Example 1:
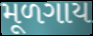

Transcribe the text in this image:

મૂળગાય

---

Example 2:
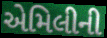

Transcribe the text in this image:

એમિલીની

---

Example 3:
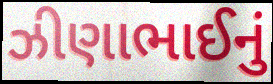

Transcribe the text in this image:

ઝીણાભાઈનું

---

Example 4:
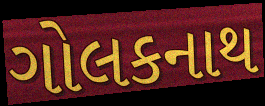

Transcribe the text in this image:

ગોલકનાથ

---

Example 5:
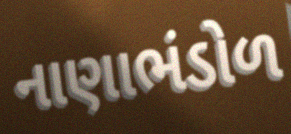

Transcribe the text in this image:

નાણાભંડોળ